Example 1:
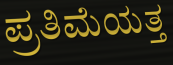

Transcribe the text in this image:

ಪ್ರತಿಮೆಯತ್ತ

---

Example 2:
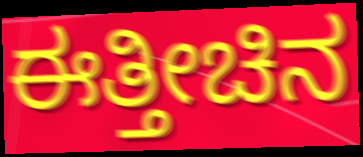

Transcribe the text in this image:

ಈತ್ತೀಚಿನ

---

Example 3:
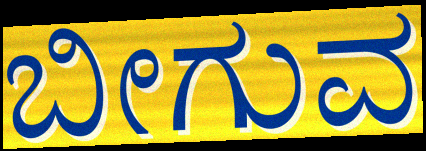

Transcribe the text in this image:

ಬೀಗುವ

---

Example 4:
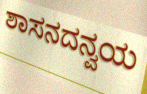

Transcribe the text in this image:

ಶಾಸನದನ್ವಯ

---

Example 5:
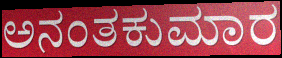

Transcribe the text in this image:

ಅನಂತಕುಮಾರ